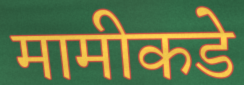
मामीकडे